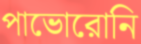
পাভোরোনি